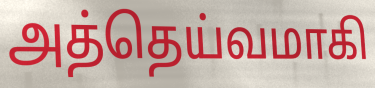
அத்தெய்வமாகி